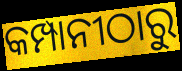
କମ୍ପାନୀଠାରୁ